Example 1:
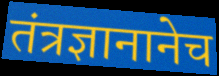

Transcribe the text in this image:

तंत्रज्ञानानेच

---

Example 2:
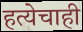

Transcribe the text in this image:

हत्येचाही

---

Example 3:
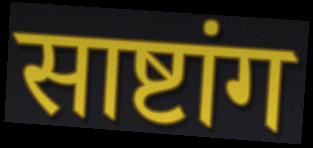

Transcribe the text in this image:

साष्टांग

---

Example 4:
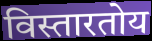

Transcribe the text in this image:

विस्तारतोय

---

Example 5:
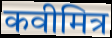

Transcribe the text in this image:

कवीमित्र